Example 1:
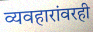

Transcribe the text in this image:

व्यवहारांवरही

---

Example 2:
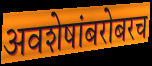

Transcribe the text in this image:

अवशेषांबरोबरच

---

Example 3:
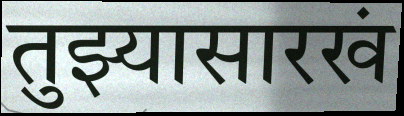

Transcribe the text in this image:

तुझ्यासारखं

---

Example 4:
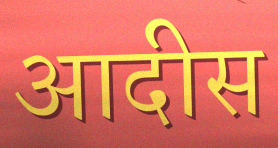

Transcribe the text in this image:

आदीस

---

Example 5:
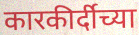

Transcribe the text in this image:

कारकीर्दीच्या